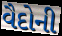
વૈદોની